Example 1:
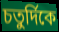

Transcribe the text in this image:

চতুর্দিকে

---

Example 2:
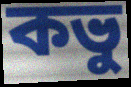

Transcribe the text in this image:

কভু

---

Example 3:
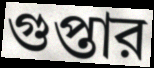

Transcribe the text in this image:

গুপ্তার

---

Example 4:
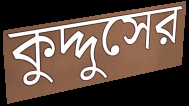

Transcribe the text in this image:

কুদ্দুসের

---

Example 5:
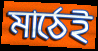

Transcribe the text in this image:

মাঠেই